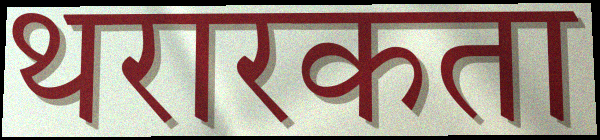
थरारकता